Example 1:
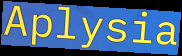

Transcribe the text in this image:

Aplysia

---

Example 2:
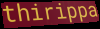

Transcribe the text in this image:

thirippa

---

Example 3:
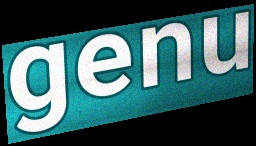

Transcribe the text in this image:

genu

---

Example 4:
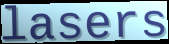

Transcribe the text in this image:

lasers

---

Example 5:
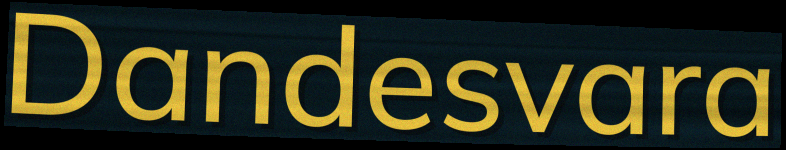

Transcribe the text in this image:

Dandesvara